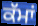
ਕੱਮਾਂ